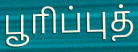
பூரிப்புத்